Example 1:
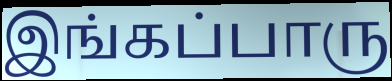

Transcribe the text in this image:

இங்கப்பாரு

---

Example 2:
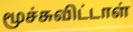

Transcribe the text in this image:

மூச்சுவிட்டாள்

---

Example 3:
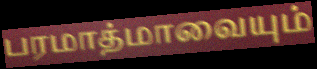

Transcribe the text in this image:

பரமாத்மாவையும்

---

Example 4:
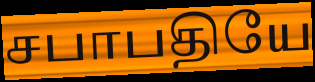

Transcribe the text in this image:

சபாபதியே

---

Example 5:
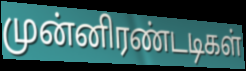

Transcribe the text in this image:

முன்னிரண்டடிகள்